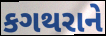
કગથરાને